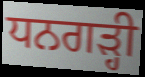
ਧਨਗੜ੍ਹੀ